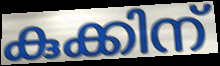
കുക്കിന്